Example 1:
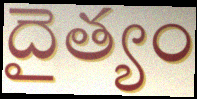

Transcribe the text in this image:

దైత్యం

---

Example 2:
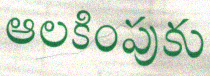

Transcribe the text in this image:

ఆలకింపుకు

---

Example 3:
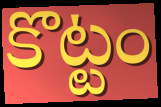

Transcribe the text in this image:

కొట్టం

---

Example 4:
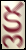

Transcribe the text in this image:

క్ల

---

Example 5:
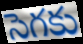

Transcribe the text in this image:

సెగకు